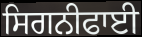
ਸਿਗਨੀਫਾਈ